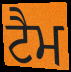
ਟੈਮ